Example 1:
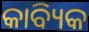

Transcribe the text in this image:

କାବ୍ୟିକ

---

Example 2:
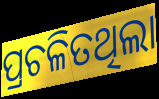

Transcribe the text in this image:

ପ୍ରଚଳିତଥିଲା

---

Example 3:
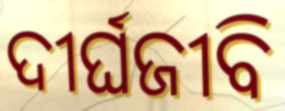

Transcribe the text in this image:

ଦୀର୍ଘଜୀବି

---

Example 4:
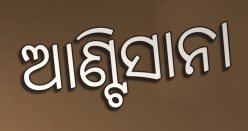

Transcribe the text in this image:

ଆଣ୍ଟିସାନା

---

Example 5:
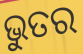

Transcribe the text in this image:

ଭୁତର